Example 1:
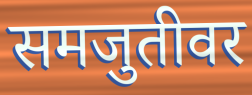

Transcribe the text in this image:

समजुतीवर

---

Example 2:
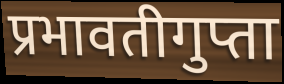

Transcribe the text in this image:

प्रभावतीगुप्ता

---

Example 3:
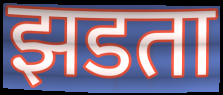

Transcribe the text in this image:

झडता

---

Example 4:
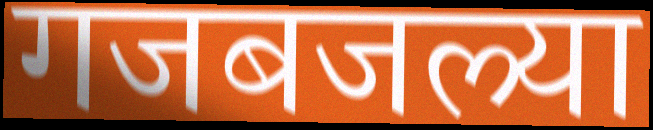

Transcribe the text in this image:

गजबजल्या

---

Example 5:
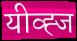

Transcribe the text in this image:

यीव्ह्ज